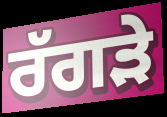
ਰੱਗੜੇ